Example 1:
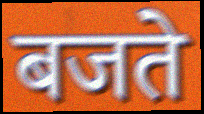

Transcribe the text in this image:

बजते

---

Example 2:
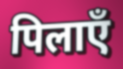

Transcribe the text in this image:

पिलाएँ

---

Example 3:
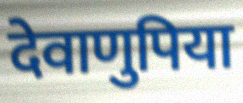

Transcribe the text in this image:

देवाणुपिया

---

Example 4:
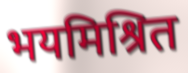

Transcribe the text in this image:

भयमिश्रित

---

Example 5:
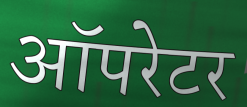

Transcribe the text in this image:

ऑपरेटर